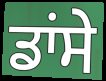
ਡਾਂਸੇ